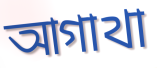
আগাথা